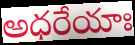
అధరేయాః